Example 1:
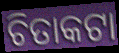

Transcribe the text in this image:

ଚିତାକଟା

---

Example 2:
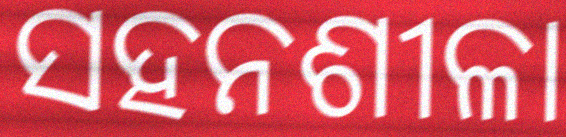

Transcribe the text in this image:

ସହନଶୀଳା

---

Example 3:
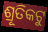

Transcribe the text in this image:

ଶ୍ରୂତିକଟୁ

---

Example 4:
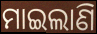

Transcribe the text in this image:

ମାଇଲାଣି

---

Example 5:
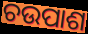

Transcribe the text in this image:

ଚଉପାଶ